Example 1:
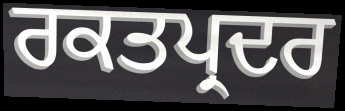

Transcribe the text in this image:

ਰਕਤਪ੍ਰਦਰ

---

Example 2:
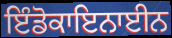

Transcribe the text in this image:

ਇੰਡੋਕਾਇਨਾਈਨ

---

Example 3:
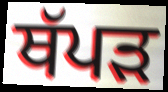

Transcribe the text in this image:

ਥੱਪੜ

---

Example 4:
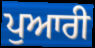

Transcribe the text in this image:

ਪੁਆਰੀ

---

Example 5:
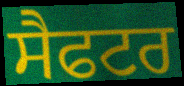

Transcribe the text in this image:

ਸੈਫਟਰ